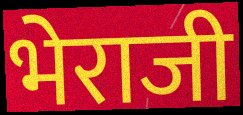
भेराजी